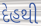
દેહથી